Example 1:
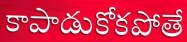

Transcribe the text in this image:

కాపాడుకోకపోతే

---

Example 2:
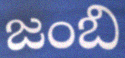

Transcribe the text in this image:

జంబి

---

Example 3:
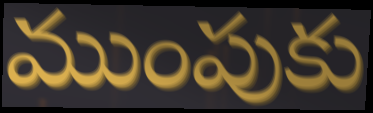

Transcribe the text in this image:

ముంపుకు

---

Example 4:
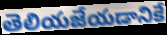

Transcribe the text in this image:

తెలియజేయడానికే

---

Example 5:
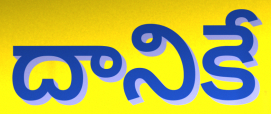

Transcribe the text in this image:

దానికే